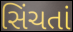
સિંચતાં